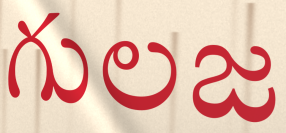
గులజ